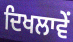
ਦਿਖਲਾਵੇਂ